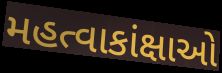
મહત્વાકાંક્ષાઓ